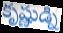
కృష్ణుడ్ని